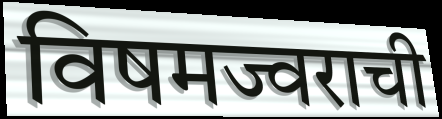
विषमज्वराची